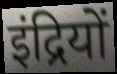
इंद्रियों